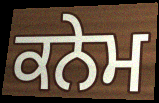
ਕਨੇਮ